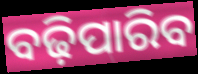
ବଢ଼ିପାରିବ